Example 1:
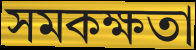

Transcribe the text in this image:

সমকক্ষতা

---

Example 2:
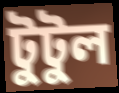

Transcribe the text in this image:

টুটুল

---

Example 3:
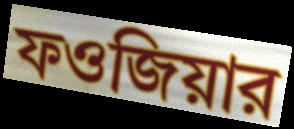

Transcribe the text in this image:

ফওজিয়ার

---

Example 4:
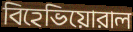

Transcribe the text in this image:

বিহেভিয়োরাল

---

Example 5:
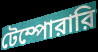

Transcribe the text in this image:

টেম্পোরারি